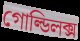
গোল্ডিলক্স